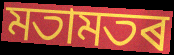
মতামতৰ